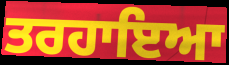
ਤਰਹਾਇਆ